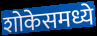
शोकेसमध्ये